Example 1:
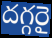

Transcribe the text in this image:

దగ్గరై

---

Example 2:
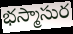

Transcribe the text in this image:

భస్మాసుర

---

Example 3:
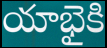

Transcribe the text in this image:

యాభైకి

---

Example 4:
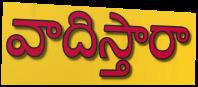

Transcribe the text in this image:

వాదిస్తారా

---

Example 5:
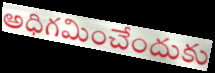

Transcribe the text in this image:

అధిగమించేందుకు